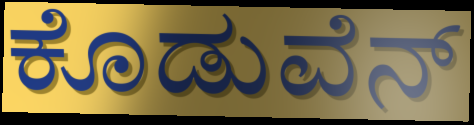
ಕೊಡುವೆನ್